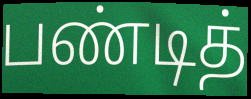
பண்டித்